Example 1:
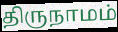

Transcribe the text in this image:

திருநாமம்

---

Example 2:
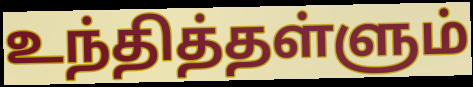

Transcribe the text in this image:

உந்தித்தள்ளும்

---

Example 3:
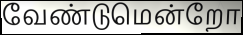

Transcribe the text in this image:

வேண்டுமென்றோ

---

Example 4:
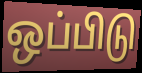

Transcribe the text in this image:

ஒப்பிடு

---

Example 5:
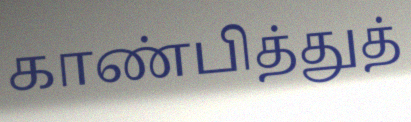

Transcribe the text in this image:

காண்பித்துத்